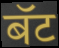
बॅट